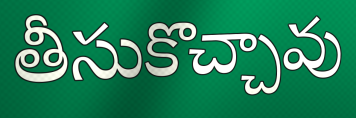
తీసుకొచ్చావు